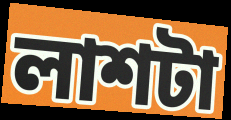
লাশটা